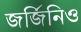
জর্জিনিও